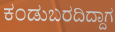
ಕಂಡುಬರದಿದ್ದಾಗ